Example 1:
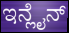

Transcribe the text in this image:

ಇನ್ಲೈನ್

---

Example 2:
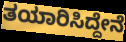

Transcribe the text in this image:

ತಯಾರಿಸಿದ್ದೇನೆ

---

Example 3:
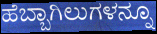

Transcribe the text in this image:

ಹೆಬ್ಬಾಗಿಲುಗಳನ್ನೂ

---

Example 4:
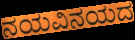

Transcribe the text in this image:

ನಯವಿನಯದ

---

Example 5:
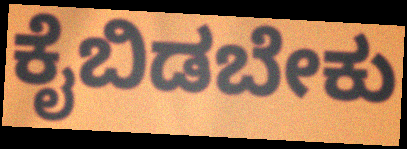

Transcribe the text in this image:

ಕೈಬಿಡಬೇಕು